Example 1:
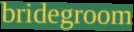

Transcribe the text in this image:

bridegroom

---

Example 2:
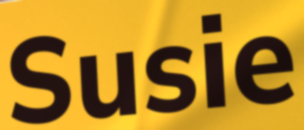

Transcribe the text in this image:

Susie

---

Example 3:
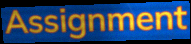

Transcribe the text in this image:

Assignment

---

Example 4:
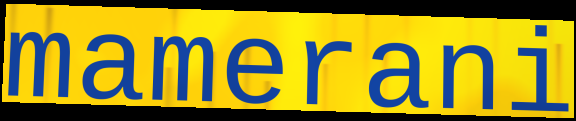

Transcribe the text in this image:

mamerani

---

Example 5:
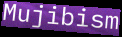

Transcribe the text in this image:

Mujibism